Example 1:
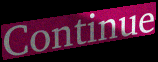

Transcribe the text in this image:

Continue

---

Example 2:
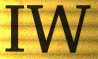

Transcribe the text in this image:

IW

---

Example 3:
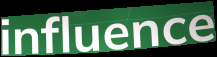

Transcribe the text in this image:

influence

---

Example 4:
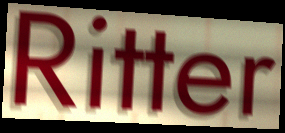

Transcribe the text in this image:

Ritter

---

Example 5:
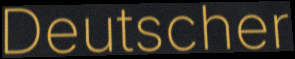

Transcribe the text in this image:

Deutscher